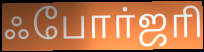
ஃபோர்ஜரி